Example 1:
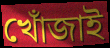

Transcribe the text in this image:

খোঁজাই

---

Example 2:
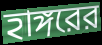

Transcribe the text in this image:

হাঙ্গরের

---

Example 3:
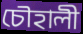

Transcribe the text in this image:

চৌহালী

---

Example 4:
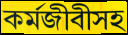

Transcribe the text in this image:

কর্মজীবীসহ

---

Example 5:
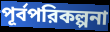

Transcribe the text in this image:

পূর্বপরিকল্পনা